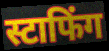
स्टाफिंग